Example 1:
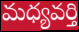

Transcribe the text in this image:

మధ్యవర్తి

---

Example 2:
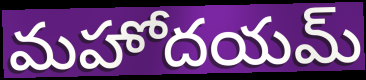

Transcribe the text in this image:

మహోదయమ్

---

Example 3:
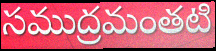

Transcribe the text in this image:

సముద్రమంతటి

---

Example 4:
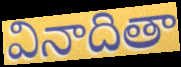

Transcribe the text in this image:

వినాదితా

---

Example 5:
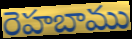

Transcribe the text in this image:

రెహబాము